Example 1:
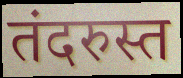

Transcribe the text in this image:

तंदरुस्त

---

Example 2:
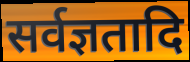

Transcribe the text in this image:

सर्वज्ञतादि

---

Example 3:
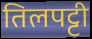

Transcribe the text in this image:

तिलपट्टी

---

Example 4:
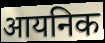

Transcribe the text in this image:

आयनिक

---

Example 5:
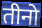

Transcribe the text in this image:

तीनो